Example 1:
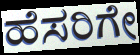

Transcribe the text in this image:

ಹೆಸರಿಗೇ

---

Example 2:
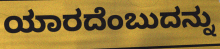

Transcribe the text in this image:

ಯಾರದೆಂಬುದನ್ನು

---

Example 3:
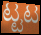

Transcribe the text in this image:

ಟ್ಟಟ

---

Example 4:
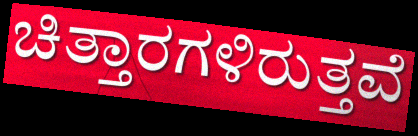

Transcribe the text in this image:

ಚಿತ್ತಾರಗಳಿರುತ್ತವೆ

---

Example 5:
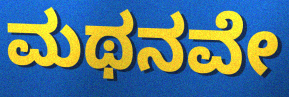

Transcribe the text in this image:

ಮಥನವೇ